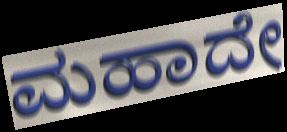
ಮಹಾದೇ